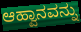
ಆಹ್ವಾನವನ್ನು